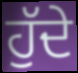
ਹੁੱਦੇ